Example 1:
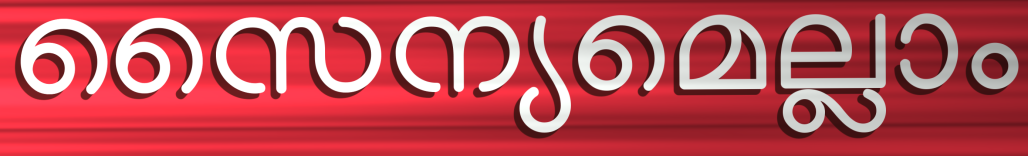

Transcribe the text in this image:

സൈന്യമെല്ലാം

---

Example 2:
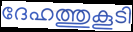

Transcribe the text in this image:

ദേഹത്തുകൂടി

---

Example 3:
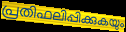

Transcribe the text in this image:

പ്രതിഫലിപ്പിക്കുകയും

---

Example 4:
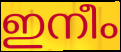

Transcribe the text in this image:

ഇനീം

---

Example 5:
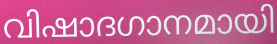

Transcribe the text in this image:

വിഷാദഗാനമായി